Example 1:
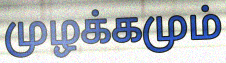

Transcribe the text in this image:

முழக்கமும்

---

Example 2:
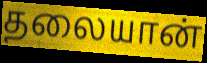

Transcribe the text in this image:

தலையான்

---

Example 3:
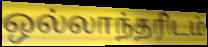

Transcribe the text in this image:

ஒல்லாந்தரிடம்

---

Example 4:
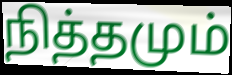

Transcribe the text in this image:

நித்தமும்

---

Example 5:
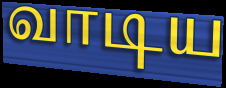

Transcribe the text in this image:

வாடிய